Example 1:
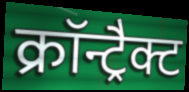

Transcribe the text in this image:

क्रॉन्ट्रैक्ट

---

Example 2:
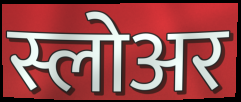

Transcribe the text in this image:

स्लोअर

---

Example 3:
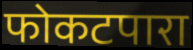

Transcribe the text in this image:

फोकटपारा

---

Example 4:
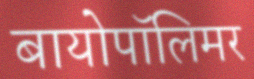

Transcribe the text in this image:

बायोपॉलिमर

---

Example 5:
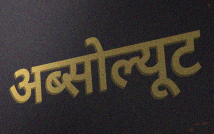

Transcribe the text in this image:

अब्सोल्यूट